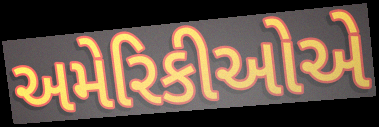
અમેરિકીઓએ